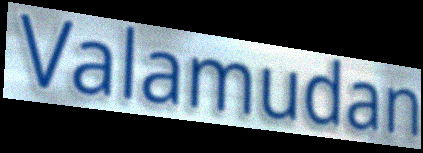
Valamudan